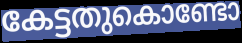
കേട്ടതുകൊണ്ടോ